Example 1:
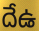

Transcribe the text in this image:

దేఉ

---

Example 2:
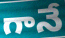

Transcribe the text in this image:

గానే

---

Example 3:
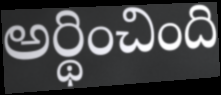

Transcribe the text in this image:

అర్థించింది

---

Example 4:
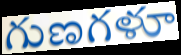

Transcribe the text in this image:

గుణగళూ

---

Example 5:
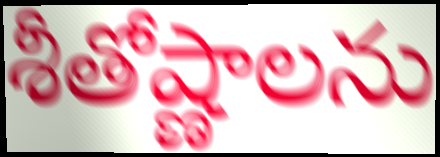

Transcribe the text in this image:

శీతోష్ణాలను